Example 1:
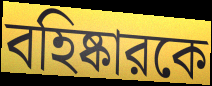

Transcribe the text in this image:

বহিষ্কারকে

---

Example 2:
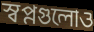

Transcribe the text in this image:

স্বপ্নগুলোও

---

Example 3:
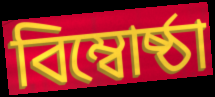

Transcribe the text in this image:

বিম্বোষ্ঠা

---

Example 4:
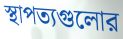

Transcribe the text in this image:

স্থাপত্যগুলোর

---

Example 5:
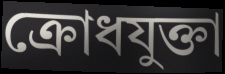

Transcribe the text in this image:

ক্রোধযুক্তা